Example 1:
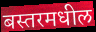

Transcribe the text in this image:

बस्तरमधील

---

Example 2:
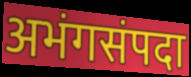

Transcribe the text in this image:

अभंगसंपदा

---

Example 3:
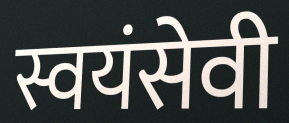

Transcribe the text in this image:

स्वयंसेवी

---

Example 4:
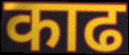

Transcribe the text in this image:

काढ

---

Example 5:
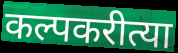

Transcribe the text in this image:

कल्पकरीत्या